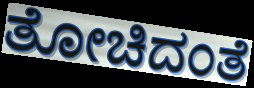
ತೋಚಿದಂತೆ